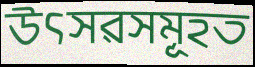
উৎসৱসমূহত